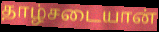
தாழ்சடையான்